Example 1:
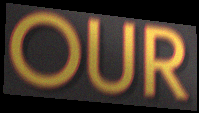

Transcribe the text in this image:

OUR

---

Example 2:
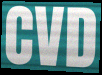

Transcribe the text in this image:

CVD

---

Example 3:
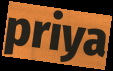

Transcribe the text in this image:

priya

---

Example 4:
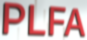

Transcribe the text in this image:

PLFA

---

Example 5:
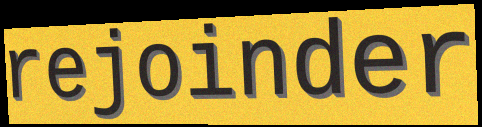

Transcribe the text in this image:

rejoinder